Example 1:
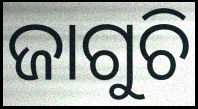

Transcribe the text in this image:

ଜାଗୁଚି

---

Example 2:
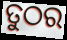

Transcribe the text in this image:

ତୁଠର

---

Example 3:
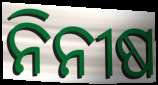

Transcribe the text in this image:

ନିନୀଷ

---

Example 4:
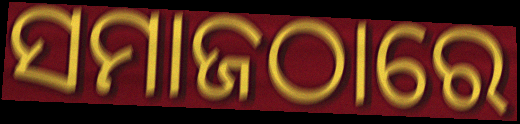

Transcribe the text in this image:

ସମାଜଠାରେ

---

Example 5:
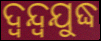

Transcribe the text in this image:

ଦ୍ୱନ୍ଦ୍ୱଯୁଦ୍ଧ